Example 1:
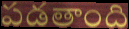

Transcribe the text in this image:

పడతాంది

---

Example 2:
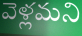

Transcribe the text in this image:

వెళ్లమని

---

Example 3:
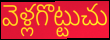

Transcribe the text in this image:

వెళ్లగొట్టుచు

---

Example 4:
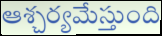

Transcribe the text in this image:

ఆశ్చర్యమేస్తుంది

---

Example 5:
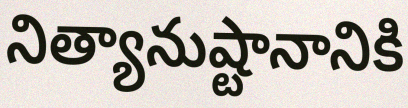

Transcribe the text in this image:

నిత్యానుష్టానానికి